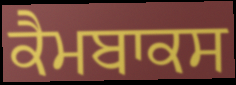
ਕੈਮਬਾਕਸ